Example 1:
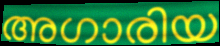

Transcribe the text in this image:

അഗാരിയ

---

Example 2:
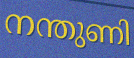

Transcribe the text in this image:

നന്തുണി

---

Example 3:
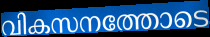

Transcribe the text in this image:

വികസനത്തോടെ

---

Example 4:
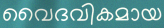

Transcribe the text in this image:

വൈദവികമായ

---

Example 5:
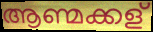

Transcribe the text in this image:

ആണ്മക്കള്